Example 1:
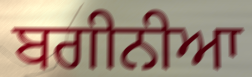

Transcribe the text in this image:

ਬਗੀਨੀਆ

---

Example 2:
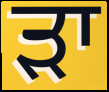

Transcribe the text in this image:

ੜਾ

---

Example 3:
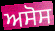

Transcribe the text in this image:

ਅਸੋਸ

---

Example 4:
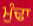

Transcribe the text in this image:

ਮੁੰਢਾ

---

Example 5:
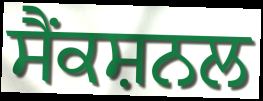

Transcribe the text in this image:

ਸੈਂਕਸ਼ਨਲ